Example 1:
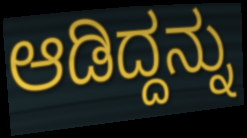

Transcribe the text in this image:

ಆಡಿದ್ದನ್ನು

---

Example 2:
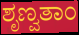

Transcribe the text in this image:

ಶೃಣ್ವತಾಂ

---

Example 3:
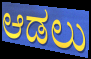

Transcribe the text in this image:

ಆಡಲು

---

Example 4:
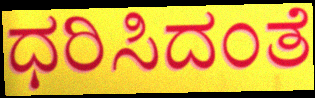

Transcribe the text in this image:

ಧರಿಸಿದಂತೆ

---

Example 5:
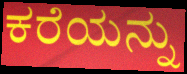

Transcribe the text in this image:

ಕರೆಯನ್ನು